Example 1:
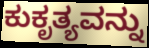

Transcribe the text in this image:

ಕುಕೃತ್ಯವನ್ನು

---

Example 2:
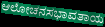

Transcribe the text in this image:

ಆಲೋಚನಸಭಾವತಾಯ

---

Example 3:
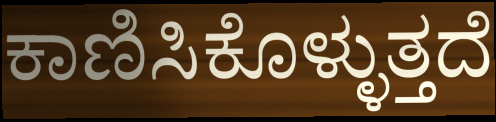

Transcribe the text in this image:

ಕಾಣಿಸಿಕೊಳ್ಳುತ್ತದೆ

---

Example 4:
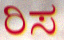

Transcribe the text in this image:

ರಿಸ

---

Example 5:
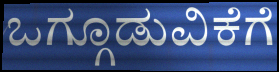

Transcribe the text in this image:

ಒಗ್ಗೂಡುವಿಕೆಗೆ